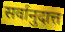
सर्वानुदात्त